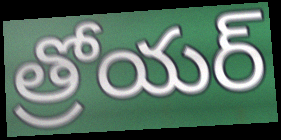
త్రోయర్